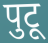
पुटू